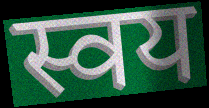
स्वय